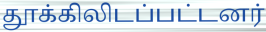
தூக்கிலிடப்பட்டனர்